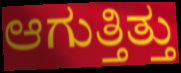
ಆಗುತ್ತಿತ್ತು